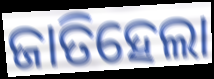
ଜାତିହେଲା